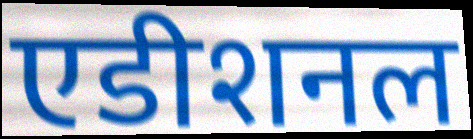
एडीशनल